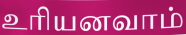
உரியனவாம்